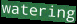
watering